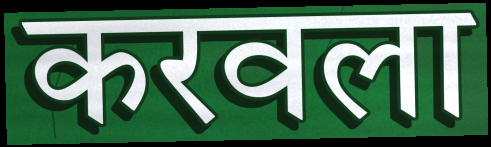
करवला